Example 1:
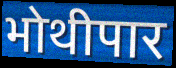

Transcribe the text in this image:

भोथीपार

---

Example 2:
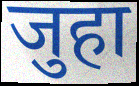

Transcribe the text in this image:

जुहा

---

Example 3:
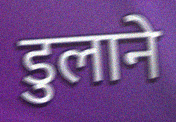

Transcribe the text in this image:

डुलाने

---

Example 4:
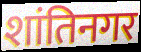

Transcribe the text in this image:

शांतिनगर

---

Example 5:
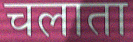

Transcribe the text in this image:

चलाता